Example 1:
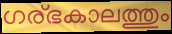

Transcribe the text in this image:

ഗര്ഭകാലത്തും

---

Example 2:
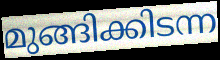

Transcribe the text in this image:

മുങ്ങിക്കിടന്ന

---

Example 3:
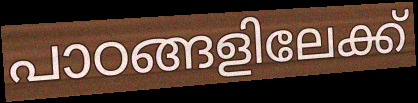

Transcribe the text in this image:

പാഠങ്ങളിലേക്ക്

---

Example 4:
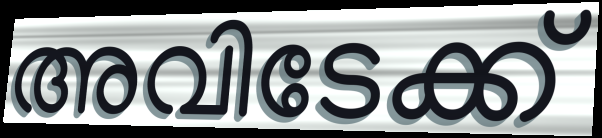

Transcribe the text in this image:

അവിടേക്ക്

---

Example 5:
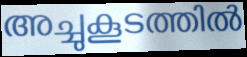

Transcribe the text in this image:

അച്ചുകൂടത്തിൽ